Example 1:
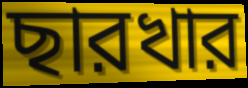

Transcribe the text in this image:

ছারখার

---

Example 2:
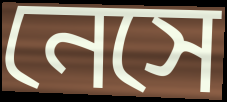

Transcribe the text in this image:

নেসে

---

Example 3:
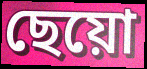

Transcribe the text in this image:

ছেয়ো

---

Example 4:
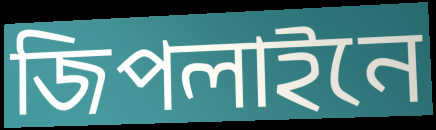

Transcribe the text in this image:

জিপলাইনে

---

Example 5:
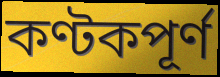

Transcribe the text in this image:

কণ্টকপূর্ণ